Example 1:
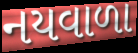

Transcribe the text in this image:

નયવાળા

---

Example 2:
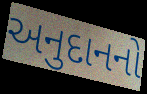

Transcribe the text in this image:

અનુદાનનો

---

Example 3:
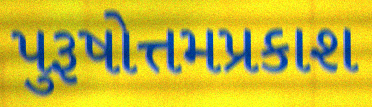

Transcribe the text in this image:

પુરૂષોત્તમપ્રકાશ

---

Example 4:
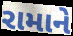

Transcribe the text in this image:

રામાને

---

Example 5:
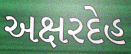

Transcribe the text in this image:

અક્ષરદેહ